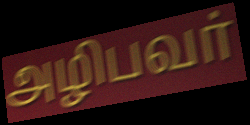
அழிபவர்